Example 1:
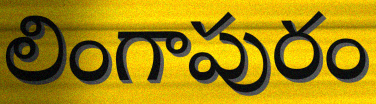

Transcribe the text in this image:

లింగాపురం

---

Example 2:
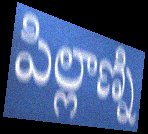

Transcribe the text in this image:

పిల్లాణ్ని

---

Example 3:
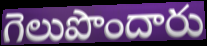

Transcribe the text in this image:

గెలుపొందారు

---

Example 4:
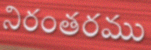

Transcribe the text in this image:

నిరంతరము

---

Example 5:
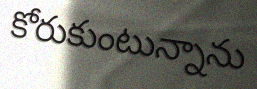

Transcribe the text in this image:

కోరుకుంటున్నాను